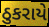
ઠુકરાયે